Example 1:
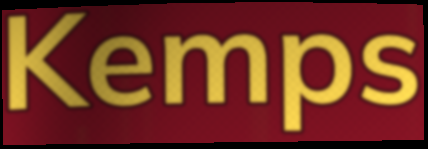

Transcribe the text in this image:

Kemps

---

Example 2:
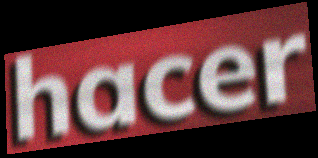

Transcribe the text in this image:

hacer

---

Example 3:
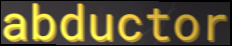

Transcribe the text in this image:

abductor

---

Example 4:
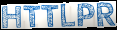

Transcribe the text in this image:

HTTLPR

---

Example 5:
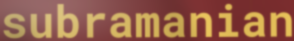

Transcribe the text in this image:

subramanian